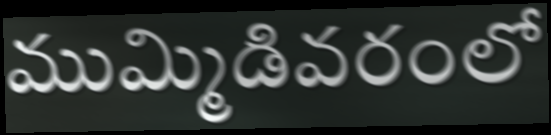
ముమ్మిడివరంలో